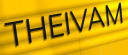
THEIVAM